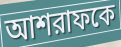
আশরাফকে